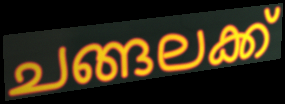
ചങ്ങലക്ക്